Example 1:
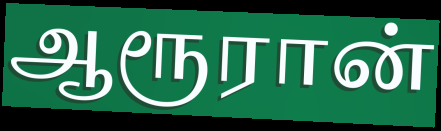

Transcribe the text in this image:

ஆரூரான்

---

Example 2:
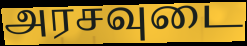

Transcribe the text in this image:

அரசவுடை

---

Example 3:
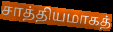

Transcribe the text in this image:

சாத்தியமாகத்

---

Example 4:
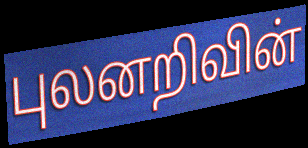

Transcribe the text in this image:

புலனறிவின்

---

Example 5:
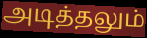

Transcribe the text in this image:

அடித்தலும்